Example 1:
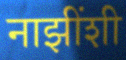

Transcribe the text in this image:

नाझींशी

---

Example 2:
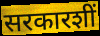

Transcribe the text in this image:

सरकारशीं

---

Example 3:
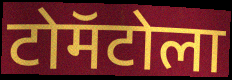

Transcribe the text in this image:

टोमॅटोला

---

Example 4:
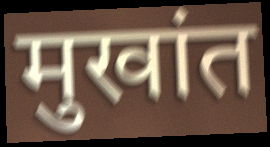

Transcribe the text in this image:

मुखांत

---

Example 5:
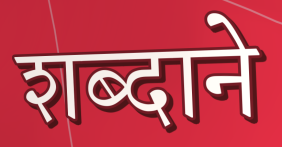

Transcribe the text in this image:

शब्दाने